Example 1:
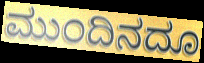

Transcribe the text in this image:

ಮುಂದಿನದೂ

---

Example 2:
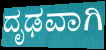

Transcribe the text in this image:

ದೃಢವಾಗಿ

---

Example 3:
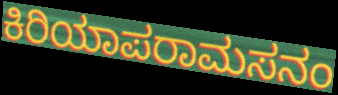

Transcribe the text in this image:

ಕಿರಿಯಾಪರಾಮಸನಂ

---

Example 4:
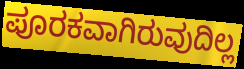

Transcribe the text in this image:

ಪೂರಕವಾಗಿರುವುದಿಲ್ಲ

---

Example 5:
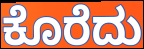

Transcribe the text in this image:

ಕೊರೆದು